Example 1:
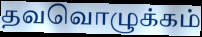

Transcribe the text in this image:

தவவொழுக்கம்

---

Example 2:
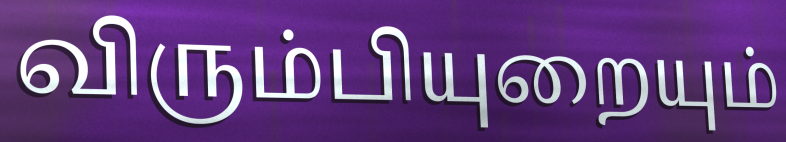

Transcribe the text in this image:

விரும்பியுறையும்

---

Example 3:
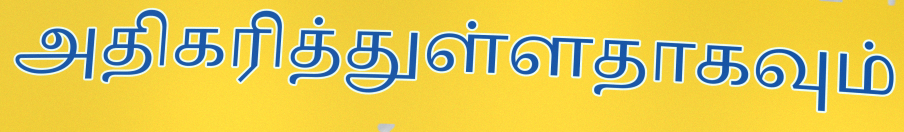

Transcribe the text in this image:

அதிகரித்துள்ளதாகவும்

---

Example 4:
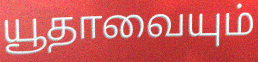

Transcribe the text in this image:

யூதாவையும்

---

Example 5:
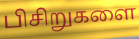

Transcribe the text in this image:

பிசிறுகளை